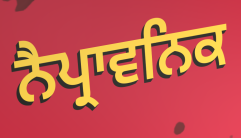
ਨੈਪ੍ਰਾਵਨਿਕ